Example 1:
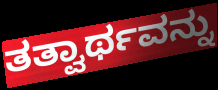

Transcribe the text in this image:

ತತ್ವಾರ್ಥವನ್ನು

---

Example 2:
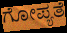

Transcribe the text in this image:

ಗೋಪ್ಯತೆ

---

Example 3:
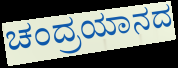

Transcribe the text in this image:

ಚಂದ್ರಯಾನದ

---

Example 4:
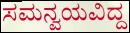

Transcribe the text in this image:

ಸಮನ್ವಯವಿದ್ದ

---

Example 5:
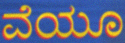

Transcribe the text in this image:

ವೆಯೂ